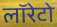
लॉरेटो